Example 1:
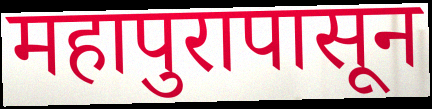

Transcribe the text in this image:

महापुरापासून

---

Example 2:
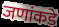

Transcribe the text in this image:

जणांकडे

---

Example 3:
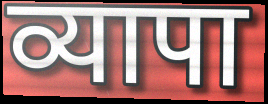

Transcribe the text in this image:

व्यापा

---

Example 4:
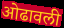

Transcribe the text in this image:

ओढावली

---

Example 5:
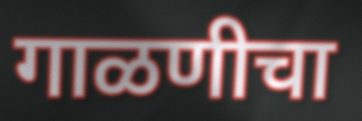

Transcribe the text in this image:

गाळणीचा